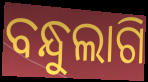
ବନ୍ଧୁଲାଗି